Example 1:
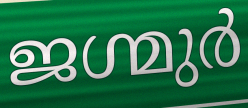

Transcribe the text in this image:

ജഗ്മുർ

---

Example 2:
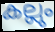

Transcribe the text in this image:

കല്ലും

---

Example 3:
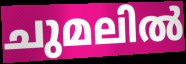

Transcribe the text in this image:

ചുമലിൽ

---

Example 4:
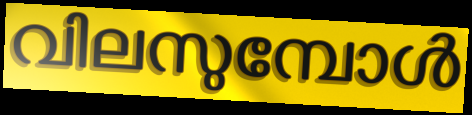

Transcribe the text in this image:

വിലസുമ്പോൾ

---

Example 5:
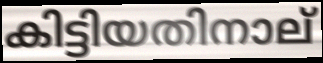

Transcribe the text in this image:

കിട്ടിയതിനാല്